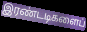
இரண்டடிகளைப்